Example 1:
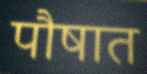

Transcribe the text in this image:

पौषात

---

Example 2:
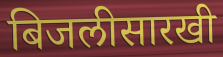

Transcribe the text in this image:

बिजलीसारखी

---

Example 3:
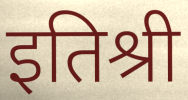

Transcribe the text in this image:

इतिश्री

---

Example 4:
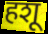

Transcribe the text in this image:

हशू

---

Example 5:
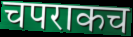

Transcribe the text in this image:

चपराकच